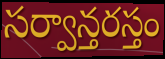
సర్వాన్తరస్తం